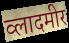
व्लादमीर